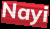
Nayi